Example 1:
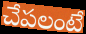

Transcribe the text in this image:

చేపలంటే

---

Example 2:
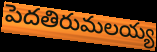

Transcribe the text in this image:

పెదతిరుమలయ్య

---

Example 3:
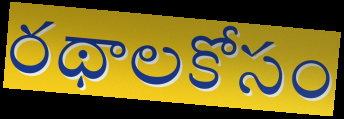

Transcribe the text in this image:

రథాలకోసం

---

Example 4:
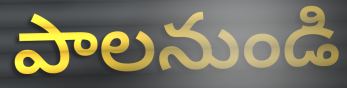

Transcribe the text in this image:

పాలనుండి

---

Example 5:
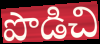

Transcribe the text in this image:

పొడిచి